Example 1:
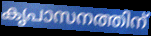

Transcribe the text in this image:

കൃപാസനത്തിന്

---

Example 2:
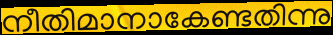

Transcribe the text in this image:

നീതിമാനാകേണ്ടതിന്നു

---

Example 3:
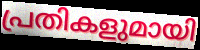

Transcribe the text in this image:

പ്രതികളുമായി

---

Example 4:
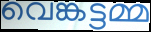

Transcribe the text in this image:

വെങ്കട്ടമ്മ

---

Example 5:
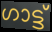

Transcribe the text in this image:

ഗാട്ട്